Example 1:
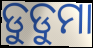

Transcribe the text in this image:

ଡୁଡୁମା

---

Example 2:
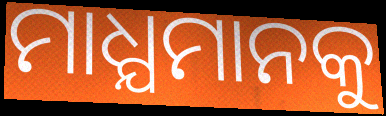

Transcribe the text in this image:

ମାଧ୍ଯମାନକୁ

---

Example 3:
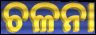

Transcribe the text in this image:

ଚଳନା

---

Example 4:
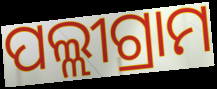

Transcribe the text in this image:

ପଲ୍ଲୀଗ୍ରାମ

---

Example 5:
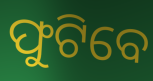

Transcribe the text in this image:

ଫୁଟିବେ